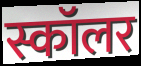
स्कॉलर